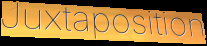
Juxtaposition